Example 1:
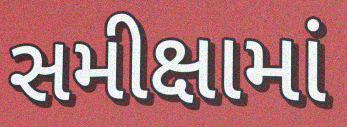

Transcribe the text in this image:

સમીક્ષામાં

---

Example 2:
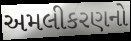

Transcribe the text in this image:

અમલીકરણનો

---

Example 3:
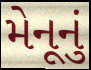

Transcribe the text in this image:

મેનૂનું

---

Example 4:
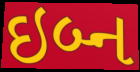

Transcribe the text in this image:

ઇબ્ન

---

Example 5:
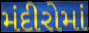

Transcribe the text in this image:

મંદીરોમાં